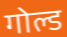
गोल्‍ड